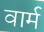
वार्म